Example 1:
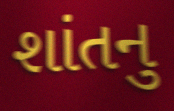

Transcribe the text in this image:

શાંતનુ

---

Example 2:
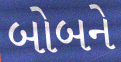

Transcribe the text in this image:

બોબને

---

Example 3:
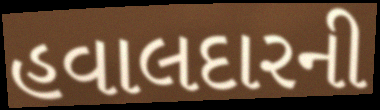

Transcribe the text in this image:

હવાલદારની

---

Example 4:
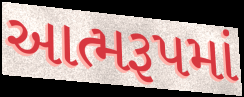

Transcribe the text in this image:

આત્મરૂપમાં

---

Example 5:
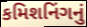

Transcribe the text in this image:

કમિશનિંગનું